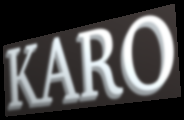
KARO